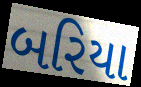
બરિયા